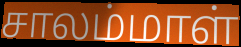
சாலம்மாள்